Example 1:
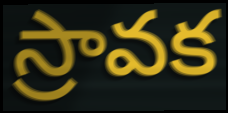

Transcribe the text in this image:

స్రావక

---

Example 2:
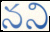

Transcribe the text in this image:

నని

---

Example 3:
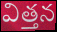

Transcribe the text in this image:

విత్తన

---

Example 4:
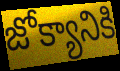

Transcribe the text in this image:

జోక్యానికి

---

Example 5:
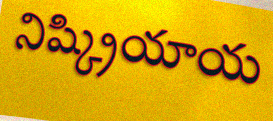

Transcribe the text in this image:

నిష్క్రియాయ